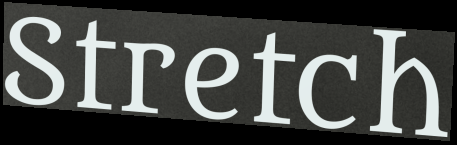
Stretch